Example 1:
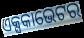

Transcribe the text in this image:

ଏକ୍ସକାଭେଟର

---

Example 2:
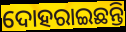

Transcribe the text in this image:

ଦୋହରାଇଛନ୍ତି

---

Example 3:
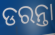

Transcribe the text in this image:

ଡରନ୍ତା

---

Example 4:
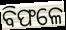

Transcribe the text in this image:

ବିଫଳେ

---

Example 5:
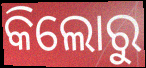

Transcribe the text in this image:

କିଲୋରୁ